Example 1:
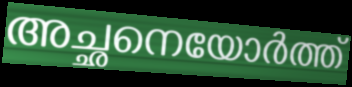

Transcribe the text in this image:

അച്ഛനെയോർത്ത്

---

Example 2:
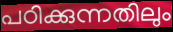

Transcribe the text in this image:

പഠിക്കുന്നതിലും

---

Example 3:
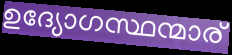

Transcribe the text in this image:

ഉദ്യോഗസ്ഥന്മാര്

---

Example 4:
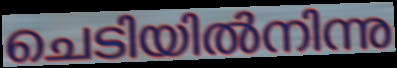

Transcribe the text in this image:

ചെടിയിൽനിന്നു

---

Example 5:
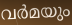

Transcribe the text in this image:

വർമയും